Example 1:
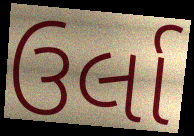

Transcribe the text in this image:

ઉર્લા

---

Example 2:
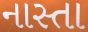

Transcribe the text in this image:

નાસ્તા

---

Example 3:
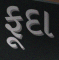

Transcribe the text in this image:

ફૂદા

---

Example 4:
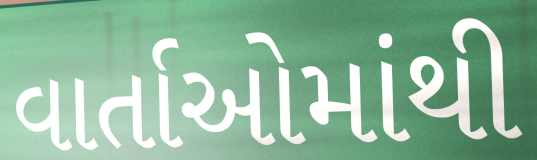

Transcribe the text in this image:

વાર્તાઓમાંથી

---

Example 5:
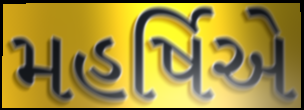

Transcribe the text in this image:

મહર્ષિએ